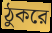
ঠুকরে